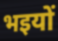
भइयों